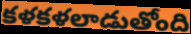
కళకళలాడుతోంది